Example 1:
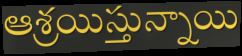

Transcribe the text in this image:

ఆశ్రయిస్తున్నాయి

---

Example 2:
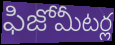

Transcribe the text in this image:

ఫిజోమీటర్ల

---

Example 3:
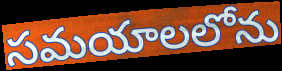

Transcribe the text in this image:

సమయాలలోను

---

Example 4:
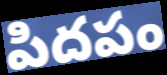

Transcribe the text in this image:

పిదపం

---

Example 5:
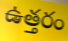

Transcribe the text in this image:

ఉత్తరం